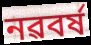
নৱবৰ্ষ